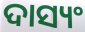
ଦାସ୍ୟଂ